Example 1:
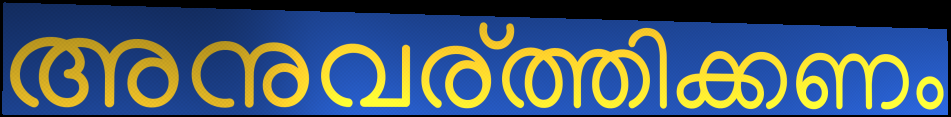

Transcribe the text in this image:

അനുവര്ത്തിക്കണം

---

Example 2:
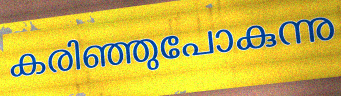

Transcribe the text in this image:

കരിഞ്ഞുപോകുന്നു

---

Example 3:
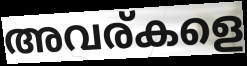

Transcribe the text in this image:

അവര്കളെ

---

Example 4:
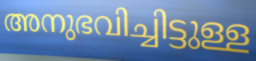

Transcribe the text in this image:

അനുഭവിച്ചിട്ടുള്ള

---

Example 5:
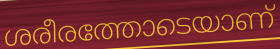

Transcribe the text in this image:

ശരീരത്തോടെയാണ്